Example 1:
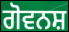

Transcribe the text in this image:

ਗੋਵਨਸ਼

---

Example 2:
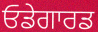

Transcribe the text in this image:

ਓਡੇਗਾਰਡ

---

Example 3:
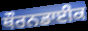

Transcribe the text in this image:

ਥੌਰਨਡਾਈਕ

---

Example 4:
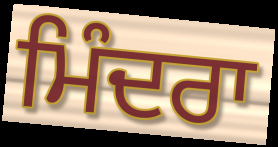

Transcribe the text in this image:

ਮਿੰਦਰਾ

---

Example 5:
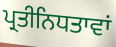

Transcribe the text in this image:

ਪ੍ਰਤੀਨਿਧਤਾਵਾਂ